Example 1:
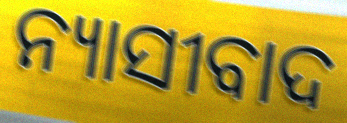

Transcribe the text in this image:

ନ୍ୟାସୀବାଦ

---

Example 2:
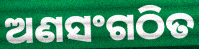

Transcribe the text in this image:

ଅଣସଂଗଠିତ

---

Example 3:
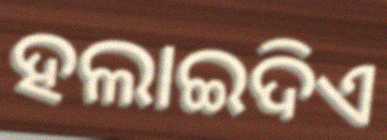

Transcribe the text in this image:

ହଲାଇଦିଏ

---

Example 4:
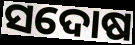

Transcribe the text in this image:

ସଦୋଷ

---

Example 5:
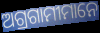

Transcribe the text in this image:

ଅଗ୍ରଗାମୀମାନେ